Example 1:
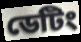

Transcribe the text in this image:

ডেটিং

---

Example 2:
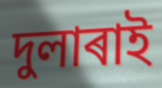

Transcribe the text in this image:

দুলাৰাই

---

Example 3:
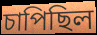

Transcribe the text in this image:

চাপিছিল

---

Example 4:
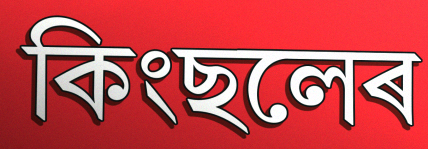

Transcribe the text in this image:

কিংছলেৰ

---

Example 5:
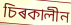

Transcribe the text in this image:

চিৰকালীন